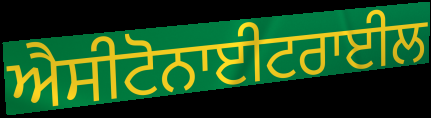
ਐਸੀਟੋਨਾਈਟਰਾਈਲ